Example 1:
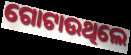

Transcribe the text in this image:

ଗୋଟାଉଥିଲେ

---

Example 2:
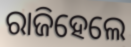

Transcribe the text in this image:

ରାଜିହେଲେ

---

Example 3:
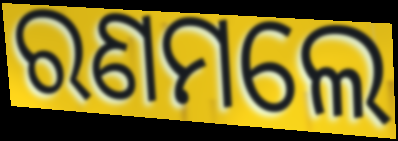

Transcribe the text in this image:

ରଣମଲେ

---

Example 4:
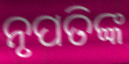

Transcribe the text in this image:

ନୃପତିଙ୍କ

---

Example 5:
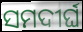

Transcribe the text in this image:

ସମଦୀର୍ଘ